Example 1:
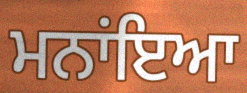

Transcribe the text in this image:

ਮਨਾਂਇਆ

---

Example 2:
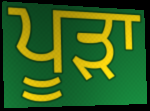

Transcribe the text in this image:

ਪੂੜਾ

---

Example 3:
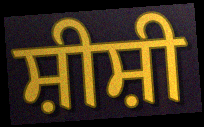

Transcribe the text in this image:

ਸ਼ੀਸ਼ੀ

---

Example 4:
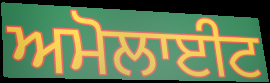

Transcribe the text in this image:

ਅਮੋਲਾਈਟ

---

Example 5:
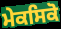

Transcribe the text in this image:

ਮੇਕਸਿਕੋ